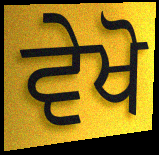
ਵੇਖੋ